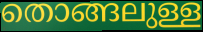
തൊങ്ങലുള്ള